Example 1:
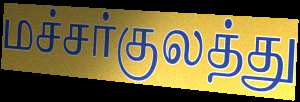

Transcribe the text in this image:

மச்சர்குலத்து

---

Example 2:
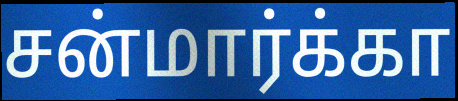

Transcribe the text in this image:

சன்மார்க்கா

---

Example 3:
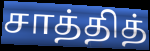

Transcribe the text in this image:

சாத்தித்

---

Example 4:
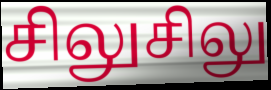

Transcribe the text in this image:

சிலுசிலு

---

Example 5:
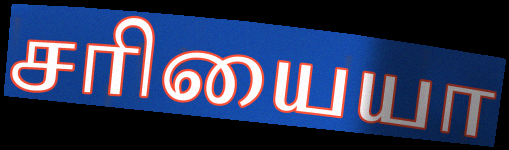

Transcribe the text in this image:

சரியையா